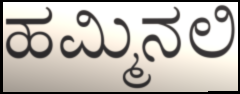
ಹಮ್ಮಿನಲಿ